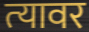
त्‍यावर